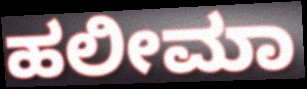
ಹಲೀಮಾ